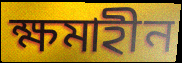
ক্ষমাহীন